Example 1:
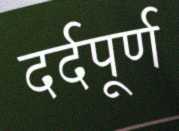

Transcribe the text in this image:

दर्दपूर्ण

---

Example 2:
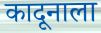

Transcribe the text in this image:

कादूनाला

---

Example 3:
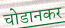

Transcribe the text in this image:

चोडानकर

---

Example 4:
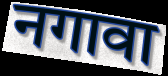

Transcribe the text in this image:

नगावा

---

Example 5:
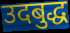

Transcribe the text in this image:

उदबुद्ध